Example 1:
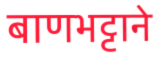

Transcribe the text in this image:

बाणभट्टाने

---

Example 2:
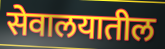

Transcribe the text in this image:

सेवालयातील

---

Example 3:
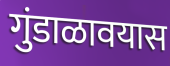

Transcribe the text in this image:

गुंडाळावयास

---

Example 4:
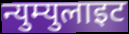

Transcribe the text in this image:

न्युम्युलाइट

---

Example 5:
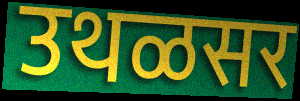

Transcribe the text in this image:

उथळसर